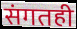
संगतही